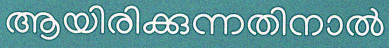
ആയിരിക്കുന്നതിനാൽ